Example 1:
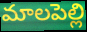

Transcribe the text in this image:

మాలపెల్లి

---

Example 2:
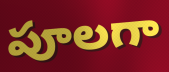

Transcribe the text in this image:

పూలగా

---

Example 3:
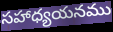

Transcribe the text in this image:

సహాధ్యయనము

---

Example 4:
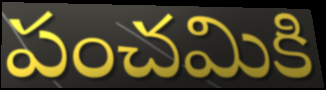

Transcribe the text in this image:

పంచమికి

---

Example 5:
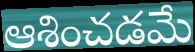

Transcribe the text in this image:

ఆశించడమే